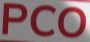
PCO